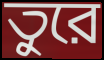
তুরে